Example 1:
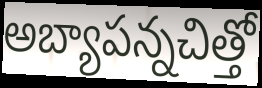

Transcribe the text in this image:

అబ్యాపన్నచిత్తో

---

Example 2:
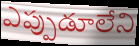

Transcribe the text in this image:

ఎప్పుడూలేని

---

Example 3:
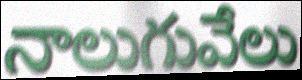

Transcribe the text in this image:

నాలుగువేలు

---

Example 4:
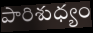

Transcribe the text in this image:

పారిశుధ్యం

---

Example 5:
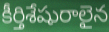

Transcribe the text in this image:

కీర్తిశేషురాలైన